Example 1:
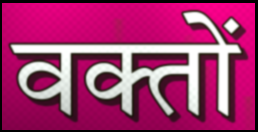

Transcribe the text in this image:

वक्तों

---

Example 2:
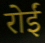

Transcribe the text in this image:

रोईं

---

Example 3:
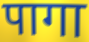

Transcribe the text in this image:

पागा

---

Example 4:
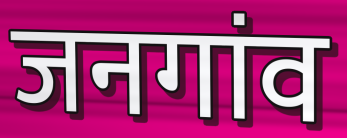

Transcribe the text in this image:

जनगांव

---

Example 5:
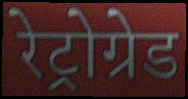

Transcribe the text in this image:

रेट्रोग्रेड